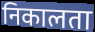
निकालता